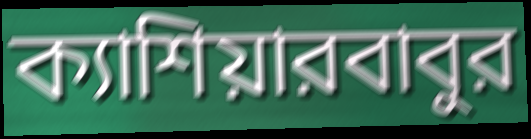
ক্যাশিয়ারবাবুর